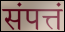
संपत्तं